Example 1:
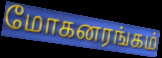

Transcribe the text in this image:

மோகனரங்கம்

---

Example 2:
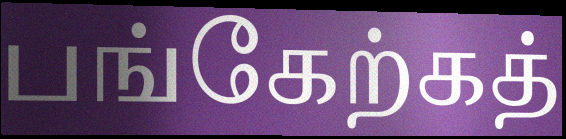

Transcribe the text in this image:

பங்கேற்கத்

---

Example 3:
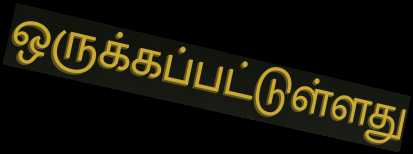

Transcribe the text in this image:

ஒருக்கப்பட்டுள்ளது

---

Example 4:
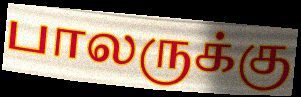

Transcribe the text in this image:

பாலருக்கு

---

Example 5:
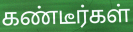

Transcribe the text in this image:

கண்டீர்கள்